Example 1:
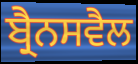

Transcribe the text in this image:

ਬ੍ਰੈਨਸਵੈਲ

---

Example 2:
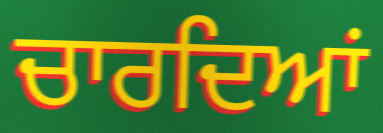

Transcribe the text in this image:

ਚਾਰਦਿਆਂ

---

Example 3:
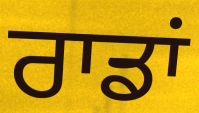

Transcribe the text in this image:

ਰਾਡਾਂ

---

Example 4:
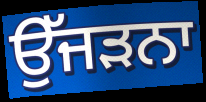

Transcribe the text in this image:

ਉੱਜੜਨਾ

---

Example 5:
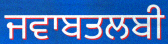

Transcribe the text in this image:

ਜਵਾਬਤਲਬੀ